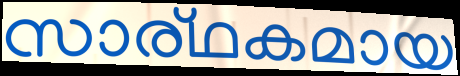
സാര്ഥകമായ